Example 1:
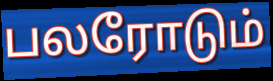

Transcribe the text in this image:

பலரோடும்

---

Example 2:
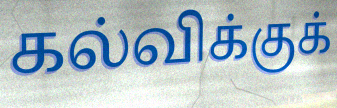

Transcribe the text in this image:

கல்விக்குக்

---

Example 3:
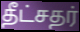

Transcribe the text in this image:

தீட்சதர்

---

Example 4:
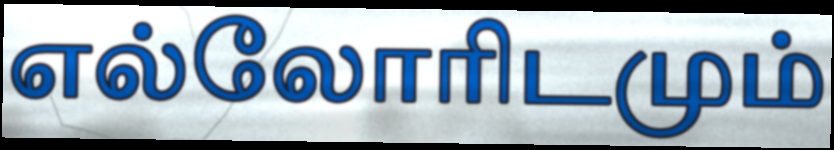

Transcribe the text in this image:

எல்லோரிடமும்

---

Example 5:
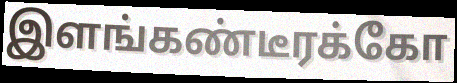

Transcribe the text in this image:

இளங்கண்டீரக்கோ